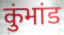
कुंभांड